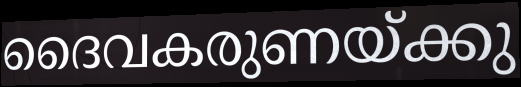
ദൈവകരുണയ്ക്കു